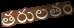
తరులతం